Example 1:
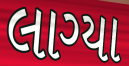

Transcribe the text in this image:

લાગ્યા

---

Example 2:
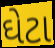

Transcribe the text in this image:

ઘેટા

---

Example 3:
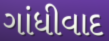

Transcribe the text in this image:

ગાંધીવાદ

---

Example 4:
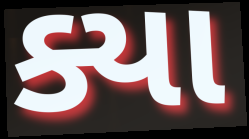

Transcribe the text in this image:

ક્યા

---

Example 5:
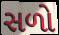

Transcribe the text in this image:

સળો